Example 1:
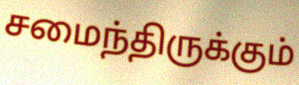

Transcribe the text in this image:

சமைந்திருக்கும்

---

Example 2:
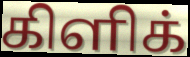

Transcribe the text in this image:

கிளிக்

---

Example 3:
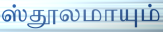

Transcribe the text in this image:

ஸ்தூலமாயும்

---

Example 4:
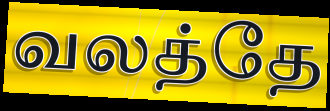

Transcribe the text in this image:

வலத்தே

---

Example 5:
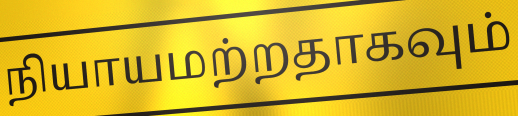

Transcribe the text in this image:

நியாயமற்றதாகவும்